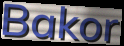
Bakor